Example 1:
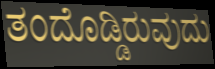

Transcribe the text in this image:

ತಂದೊಡ್ಡಿರುವುದು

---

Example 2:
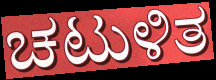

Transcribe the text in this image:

ಚಟುಳಿತ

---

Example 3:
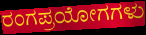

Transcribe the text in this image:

ರಂಗಪ್ರಯೋಗಗಳು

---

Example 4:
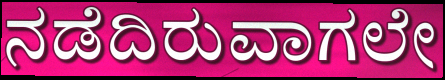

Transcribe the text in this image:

ನಡೆದಿರುವಾಗಲೇ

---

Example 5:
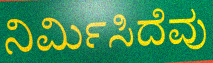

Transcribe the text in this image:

ನಿರ್ಮಿಸಿದೆವು